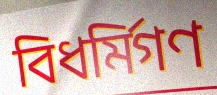
বিধর্মিগণ